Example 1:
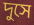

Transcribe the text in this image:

দুসে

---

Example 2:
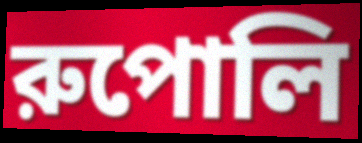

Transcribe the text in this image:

রুপোলি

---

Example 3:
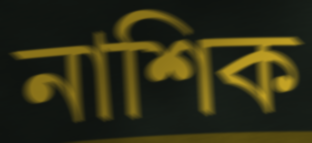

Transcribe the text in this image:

নাশিক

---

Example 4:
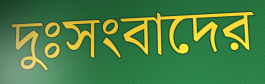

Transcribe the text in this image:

দুঃসংবাদের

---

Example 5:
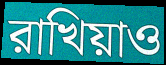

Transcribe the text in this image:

রাখিয়াও